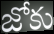
జోకు